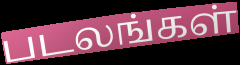
படலங்கள்